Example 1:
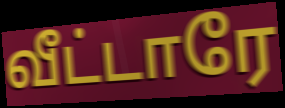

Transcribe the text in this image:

வீட்டாரே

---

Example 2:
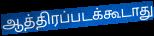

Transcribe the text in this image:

ஆத்திரப்படக்கூடாது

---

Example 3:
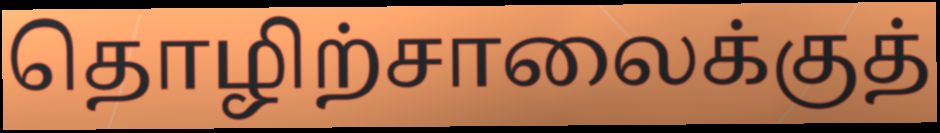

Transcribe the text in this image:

தொழிற்சாலைக்குத்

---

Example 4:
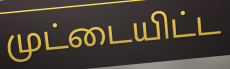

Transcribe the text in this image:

முட்டையிட்ட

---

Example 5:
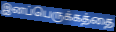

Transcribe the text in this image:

இனப்பெருக்கத்தை